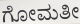
ಗೋಮತೀ